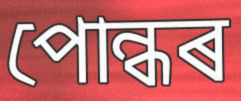
পোন্ধৰ